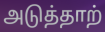
அடுத்தாற்